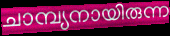
ചാമ്പ്യനായിരുന്ന